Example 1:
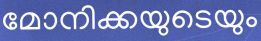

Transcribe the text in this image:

മോനിക്കയുടെയും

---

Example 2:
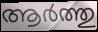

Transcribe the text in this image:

ആർത്തു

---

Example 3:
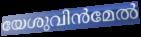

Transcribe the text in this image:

യേശുവിൻമേൽ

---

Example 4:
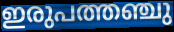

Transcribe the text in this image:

ഇരുപത്തഞ്ചു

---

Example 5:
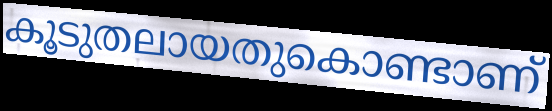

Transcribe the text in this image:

കൂടുതലായതുകൊണ്ടാണ്